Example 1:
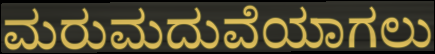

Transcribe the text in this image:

ಮರುಮದುವೆಯಾಗಲು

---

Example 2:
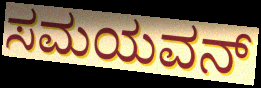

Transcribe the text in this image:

ಸಮಯವನ್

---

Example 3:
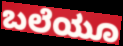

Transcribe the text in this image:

ಬಲೆಯೂ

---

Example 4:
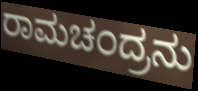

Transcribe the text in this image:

ರಾಮಚಂದ್ರನು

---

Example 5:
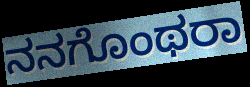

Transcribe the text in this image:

ನನಗೊಂಥರಾ